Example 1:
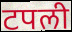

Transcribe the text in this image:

टपली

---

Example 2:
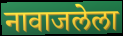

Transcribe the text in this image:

नावाजलेला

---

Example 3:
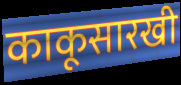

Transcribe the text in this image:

काकूसारखी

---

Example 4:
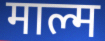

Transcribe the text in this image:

माल्म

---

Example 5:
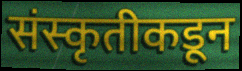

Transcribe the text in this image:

संस्कृतीकडून